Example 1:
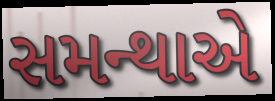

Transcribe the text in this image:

સમન્થાએ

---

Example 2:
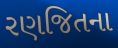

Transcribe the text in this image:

રણજિતના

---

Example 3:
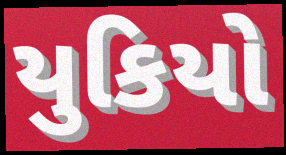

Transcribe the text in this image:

યુકિયો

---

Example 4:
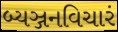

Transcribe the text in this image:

બ્યઞ્જનવિચારં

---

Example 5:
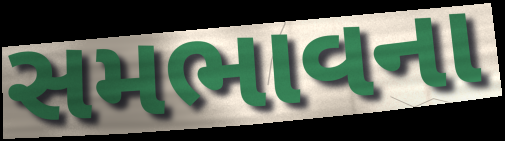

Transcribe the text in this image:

સમભાવના